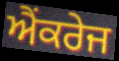
ਐਂਕਰੇਜ